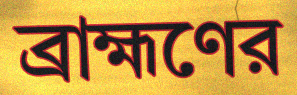
ব্রাহ্মণের